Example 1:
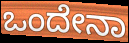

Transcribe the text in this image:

ಒಂದೇನಾ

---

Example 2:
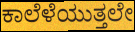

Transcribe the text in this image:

ಕಾಲೆಳೆಯುತ್ತಲೇ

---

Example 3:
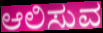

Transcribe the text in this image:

ಆಲಿಸುವ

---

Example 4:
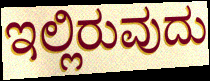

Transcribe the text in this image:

ಇಲ್ಲಿರುವುದು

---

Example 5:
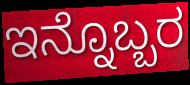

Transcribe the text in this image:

ಇನ್ನೊಬ್ಬರ